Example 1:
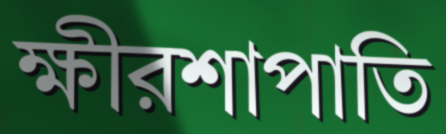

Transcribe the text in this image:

ক্ষীরশাপাতি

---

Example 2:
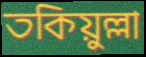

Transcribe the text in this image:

তকিয়ুল্লা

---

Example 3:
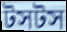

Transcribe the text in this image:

টসটস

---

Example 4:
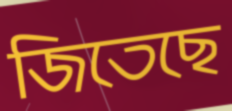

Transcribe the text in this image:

জিতেছে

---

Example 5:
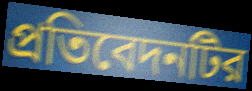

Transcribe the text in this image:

প্রতিবেদনটির